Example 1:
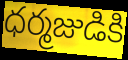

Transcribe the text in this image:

ధర్మజుడికి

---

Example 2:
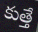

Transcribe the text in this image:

కుత్తే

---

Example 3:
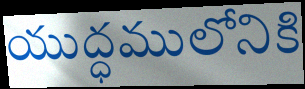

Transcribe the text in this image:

యుద్ధములోనికి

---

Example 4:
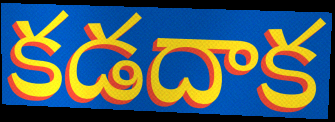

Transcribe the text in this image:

కడదాక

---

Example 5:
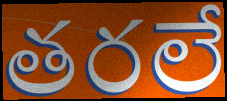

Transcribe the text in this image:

తరలే